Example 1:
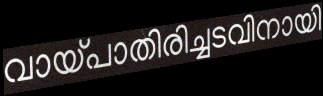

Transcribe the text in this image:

വായ്പാതിരിച്ചടവിനായി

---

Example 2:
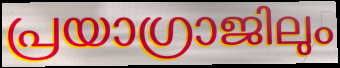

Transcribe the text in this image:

പ്രയാഗ്രാജിലും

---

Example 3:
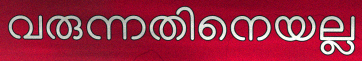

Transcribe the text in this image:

വരുന്നതിനെയല്ല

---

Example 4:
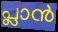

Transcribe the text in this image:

പ്ലാൻ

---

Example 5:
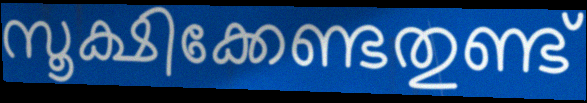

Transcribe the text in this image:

സൂക്ഷിക്കേണ്ടതുണ്ട്